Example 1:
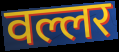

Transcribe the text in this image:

वल्लर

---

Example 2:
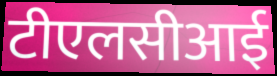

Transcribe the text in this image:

टीएलसीआई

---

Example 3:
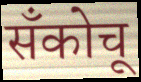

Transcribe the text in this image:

सँकोचू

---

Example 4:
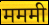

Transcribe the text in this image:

मममी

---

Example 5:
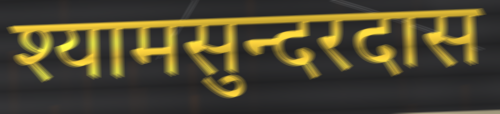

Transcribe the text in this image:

श्यामसुन्दरदास